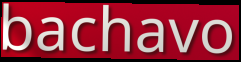
bachavo